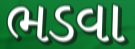
ભડવા